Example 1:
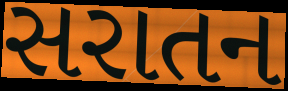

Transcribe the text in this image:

સરાતન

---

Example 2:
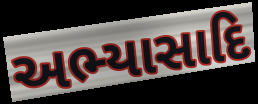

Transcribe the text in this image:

અભ્યાસાદિ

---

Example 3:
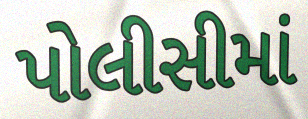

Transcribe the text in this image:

પોલીસીમાં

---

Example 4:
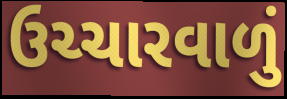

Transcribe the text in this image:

ઉચ્ચારવાળું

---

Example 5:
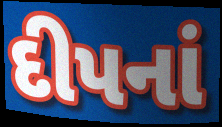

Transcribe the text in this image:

દીપનાં